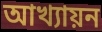
আখ্যায়ন